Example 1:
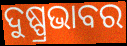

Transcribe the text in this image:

ଦୁଷ୍ପ୍ରଭାବର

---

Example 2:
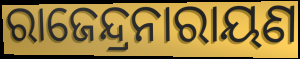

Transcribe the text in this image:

ରାଜେନ୍ଦ୍ରନାରାୟଣ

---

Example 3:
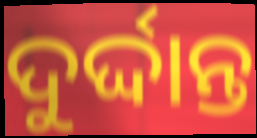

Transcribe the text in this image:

ଦୁର୍ଦ୍ଦାନ୍ତ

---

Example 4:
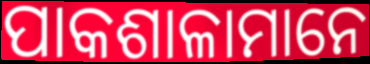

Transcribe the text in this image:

ପାକଶାଳାମାନେ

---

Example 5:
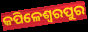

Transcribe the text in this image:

କପିଳେଶ୍ୱରପୁର